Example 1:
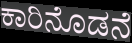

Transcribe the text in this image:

ಕಾರಿನೊಡನೆ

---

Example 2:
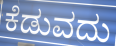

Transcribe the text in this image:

ಕೆಡುವದು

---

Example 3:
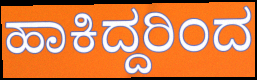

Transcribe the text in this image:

ಹಾಕಿದ್ದರಿಂದ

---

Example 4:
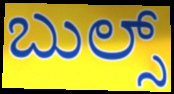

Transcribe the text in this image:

ಬುಲ್ಸ್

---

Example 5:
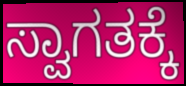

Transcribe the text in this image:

ಸ್ವಾಗತಕ್ಕೆ